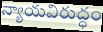
న్యాయవిరుద్ధం